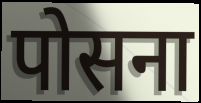
पोसना